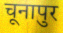
चूनापुर